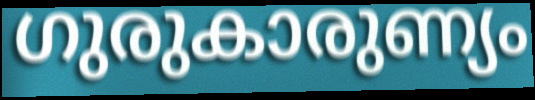
ഗുരുകാരുണ്യം